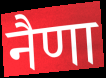
नैणा